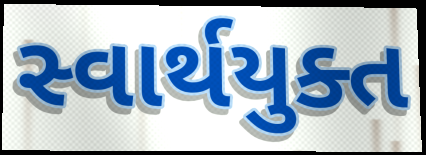
સ્વાર્થયુક્ત